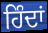
ਹਿੰਦਾਂ